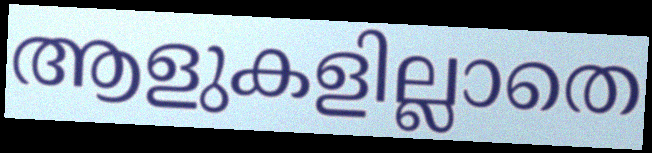
ആളുകളില്ലാതെ